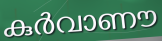
കുർവാണൗ